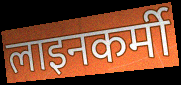
लाइनकर्मी